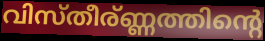
വിസ്തീര്ണ്ണത്തിന്റെ